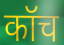
कॉच